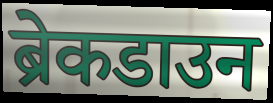
ब्रेकडाउन